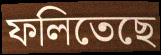
ফলিতেছে